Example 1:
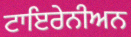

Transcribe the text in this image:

ਟਾਇਰੇਨੀਅਨ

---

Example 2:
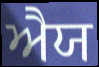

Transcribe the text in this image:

ਐਯ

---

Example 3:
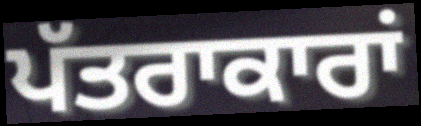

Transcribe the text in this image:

ਪੱਤਰਾਕਾਰਾਂ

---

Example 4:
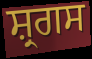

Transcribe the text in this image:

ਸ਼੍ਰਗਸ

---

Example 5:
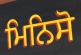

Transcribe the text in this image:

ਮਿਨਿਸੋ